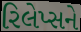
રિલેપ્સને